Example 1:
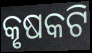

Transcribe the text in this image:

କୃଷକଟି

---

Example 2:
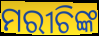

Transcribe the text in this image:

ମରୀଚିଙ୍କ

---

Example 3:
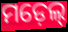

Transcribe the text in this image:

ମଡ଼େଲ୍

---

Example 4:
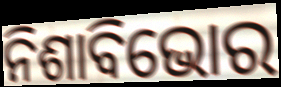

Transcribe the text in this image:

ନିଶାବିଭୋର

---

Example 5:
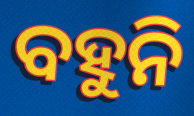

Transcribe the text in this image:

ବହୁନି